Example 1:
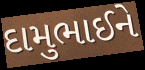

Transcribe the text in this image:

દામુભાઈને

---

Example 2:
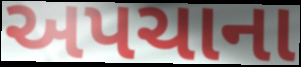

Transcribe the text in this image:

અપચાના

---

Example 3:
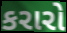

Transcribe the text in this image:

કરારો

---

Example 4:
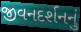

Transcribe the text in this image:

જીવનદર્શનનું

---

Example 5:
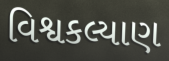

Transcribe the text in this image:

વિશ્વકલ્યાણ